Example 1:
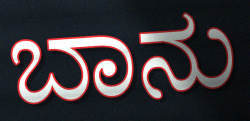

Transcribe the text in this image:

ಬಾನು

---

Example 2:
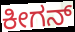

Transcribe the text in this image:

ಕೀಗನ್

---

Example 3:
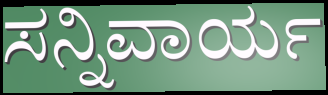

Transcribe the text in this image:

ಸನ್ನಿವಾರ್ಯ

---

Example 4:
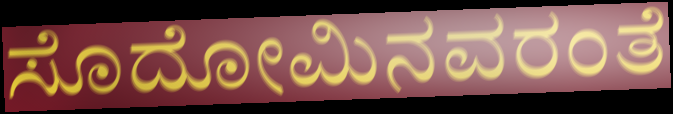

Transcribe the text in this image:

ಸೊದೋಮಿನವರಂತೆ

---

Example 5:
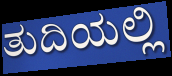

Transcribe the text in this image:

ತುದಿಯಲ್ಲಿ